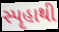
સ્પૃહાથી